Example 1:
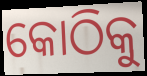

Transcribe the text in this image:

କୋଠିକୁ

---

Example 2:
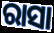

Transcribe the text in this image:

ରାସା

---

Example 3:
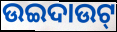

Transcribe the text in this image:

ଉଇଦାଉଟ୍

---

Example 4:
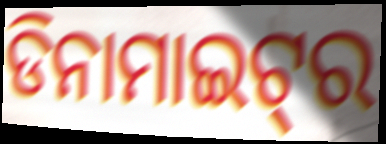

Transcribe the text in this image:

ଡିନାମାଇଟ୍‌ର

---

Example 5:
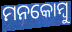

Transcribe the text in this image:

ମନକୋମ୍ବୁ